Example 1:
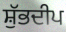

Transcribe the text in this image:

ਸ਼ੁੱਭਦੀਪ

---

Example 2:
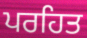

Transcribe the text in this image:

ਪਰਹਿਤ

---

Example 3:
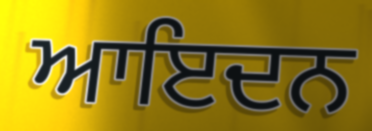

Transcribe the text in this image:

ਆਇਦਨ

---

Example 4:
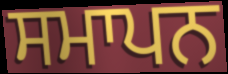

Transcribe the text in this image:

ਸਮਾਪਨ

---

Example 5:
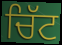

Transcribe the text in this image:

ਚਿੱਟ